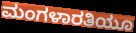
ಮಂಗಳಾರತಿಯೂ